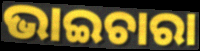
ଭାଇଚାରା